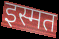
इस्मत